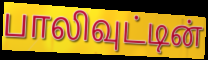
பாலிவுட்டின்